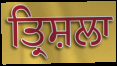
ਤ੍ਰਿਸ਼ਲਾ